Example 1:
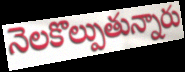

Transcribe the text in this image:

నెలకొల్పుతున్నారు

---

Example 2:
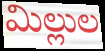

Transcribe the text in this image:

మిల్లుల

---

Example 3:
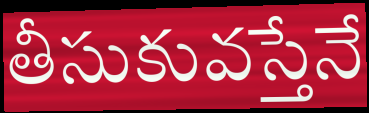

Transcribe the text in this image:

తీసుకువస్తేనే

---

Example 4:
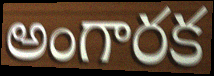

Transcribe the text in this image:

అంగారక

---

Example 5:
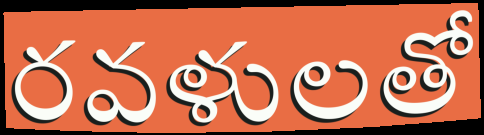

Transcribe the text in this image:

రవళులతో